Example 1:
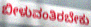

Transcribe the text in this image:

ಬೀಳುವಂತಿರಬೇಕು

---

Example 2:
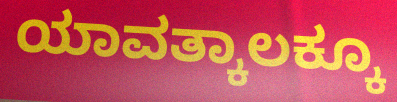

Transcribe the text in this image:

ಯಾವತ್ಕಾಲಕ್ಕೂ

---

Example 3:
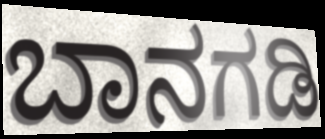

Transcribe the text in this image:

ಬಾನಗಡಿ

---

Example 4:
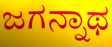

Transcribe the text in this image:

ಜಗನ್ನಾಥ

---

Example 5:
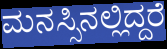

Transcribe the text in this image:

ಮನಸ್ಸಿನಲ್ಲಿದ್ದರೆ